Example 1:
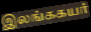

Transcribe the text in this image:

இலங்ககயர்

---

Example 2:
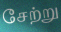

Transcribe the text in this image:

சேற்று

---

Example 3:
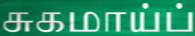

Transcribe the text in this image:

சுகமாய்ப்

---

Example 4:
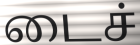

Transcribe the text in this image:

டைச்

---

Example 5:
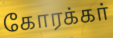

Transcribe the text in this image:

கோரக்கர்